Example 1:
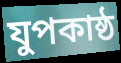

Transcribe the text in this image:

যুপকাষ্ঠ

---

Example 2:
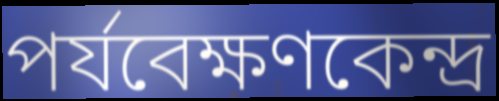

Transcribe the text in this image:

পর্যবেক্ষণকেন্দ্র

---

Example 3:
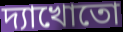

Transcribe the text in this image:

দ্যাখোতো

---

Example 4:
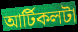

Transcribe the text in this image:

আর্টিকলটা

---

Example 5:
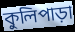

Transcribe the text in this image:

কুলিপাড়া